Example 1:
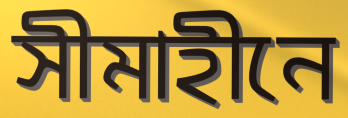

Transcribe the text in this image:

সীমাহীনে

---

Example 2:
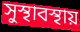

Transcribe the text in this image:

সুস্থাবস্থায়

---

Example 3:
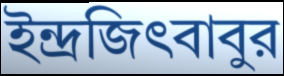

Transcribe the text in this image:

ইন্দ্রজিৎবাবুর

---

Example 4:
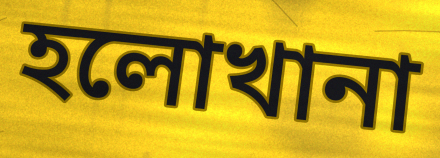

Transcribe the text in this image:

হলোখানা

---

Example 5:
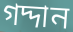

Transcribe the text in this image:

গদ্দান